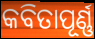
କବିତାପୂର୍ଣ୍ଣ